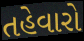
તહેવારો